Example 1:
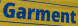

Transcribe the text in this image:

Garment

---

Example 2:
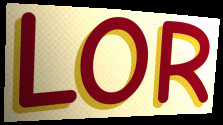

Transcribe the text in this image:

LOR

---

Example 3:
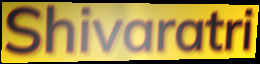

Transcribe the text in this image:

Shivaratri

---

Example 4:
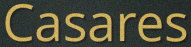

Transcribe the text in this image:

Casares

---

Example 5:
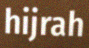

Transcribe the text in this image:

hijrah